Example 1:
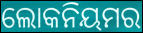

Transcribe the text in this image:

ଲୋକନିୟମର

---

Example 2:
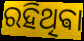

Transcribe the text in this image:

ରହିଥିଵା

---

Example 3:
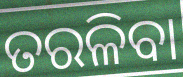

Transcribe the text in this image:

ତରଳିବା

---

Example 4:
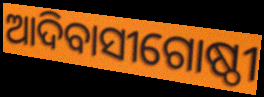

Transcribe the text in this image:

ଆଦିବାସୀଗୋଷ୍ଠୀ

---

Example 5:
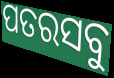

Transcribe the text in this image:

ପତରସବୁ